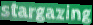
stargazing